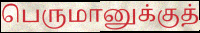
பெருமானுக்குத்